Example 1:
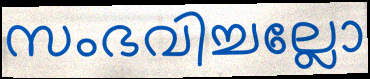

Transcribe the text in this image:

സംഭവിച്ചല്ലോ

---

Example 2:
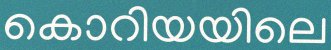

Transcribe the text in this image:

കൊറിയയിലെ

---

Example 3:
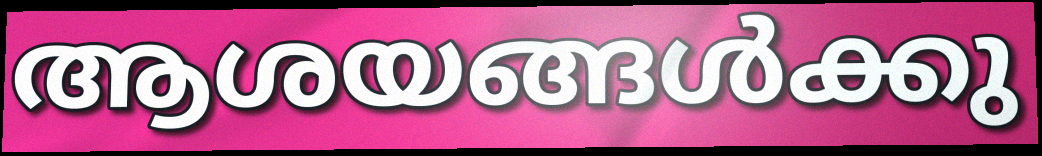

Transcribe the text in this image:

ആശയങ്ങൾക്കു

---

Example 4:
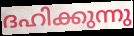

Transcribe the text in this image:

ദഹിക്കുന്നു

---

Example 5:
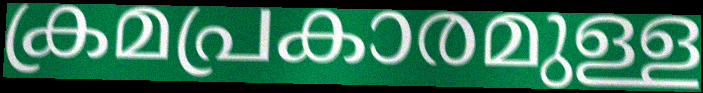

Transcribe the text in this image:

ക്രമപ്രകാരമുള്ള